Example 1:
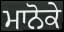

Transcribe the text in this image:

ਮਾਨੋਕੇ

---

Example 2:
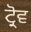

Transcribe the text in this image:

ਟ੍ਰੋਵ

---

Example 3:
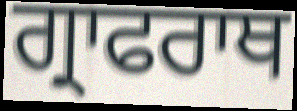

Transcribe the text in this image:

ਗ੍ਰਾਫਰਾਥ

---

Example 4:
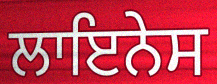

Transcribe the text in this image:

ਲਾਇਨੇਸ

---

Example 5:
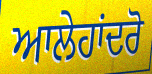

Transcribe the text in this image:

ਆਲੇਹਾਂਦਰੋ